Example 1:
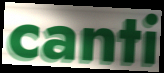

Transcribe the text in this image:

canti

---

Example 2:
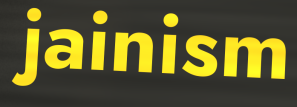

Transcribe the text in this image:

jainism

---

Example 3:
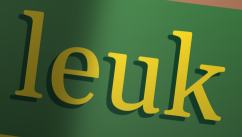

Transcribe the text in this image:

leuk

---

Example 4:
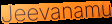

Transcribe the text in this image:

Jeevanamu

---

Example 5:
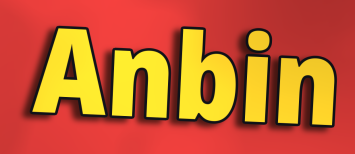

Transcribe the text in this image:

Anbin